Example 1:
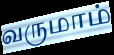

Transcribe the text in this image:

வருமாம்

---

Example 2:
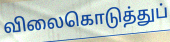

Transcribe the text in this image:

விலைகொடுத்துப்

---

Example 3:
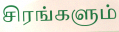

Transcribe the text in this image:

சிரங்களும்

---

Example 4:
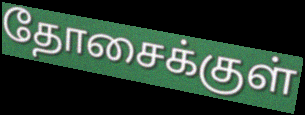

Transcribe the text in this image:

தோசைக்குள்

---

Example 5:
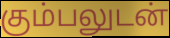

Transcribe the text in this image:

கும்பலுடன்